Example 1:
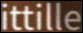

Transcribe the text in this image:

ittille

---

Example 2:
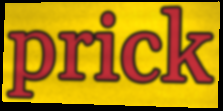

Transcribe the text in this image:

prick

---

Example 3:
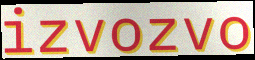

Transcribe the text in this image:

izvozvo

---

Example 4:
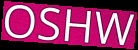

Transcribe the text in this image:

OSHW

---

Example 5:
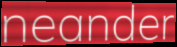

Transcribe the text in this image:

neander